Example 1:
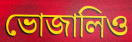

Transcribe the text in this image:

ভোজালিও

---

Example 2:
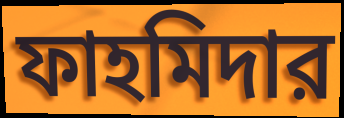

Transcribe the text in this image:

ফাহমিদার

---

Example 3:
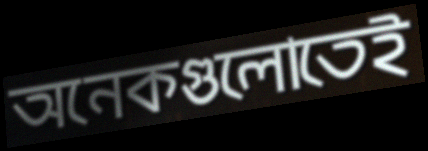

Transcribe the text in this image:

অনেকগুলোতেই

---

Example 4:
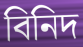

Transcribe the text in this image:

বিনিদ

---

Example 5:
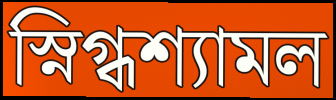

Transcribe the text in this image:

স্নিগ্ধশ্যামল